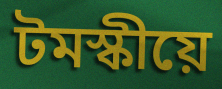
টমস্কীয়ে